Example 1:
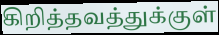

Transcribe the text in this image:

கிறித்தவத்துக்குள்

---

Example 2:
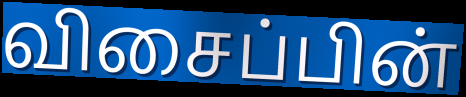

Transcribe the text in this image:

விசைப்பின்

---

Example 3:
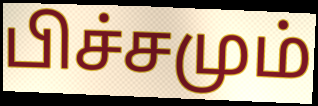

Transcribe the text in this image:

பிச்சமும்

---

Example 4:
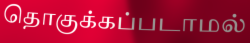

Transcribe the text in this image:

தொகுக்கப்படாமல்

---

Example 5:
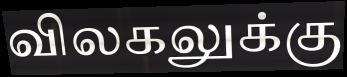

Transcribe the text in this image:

விலகலுக்கு